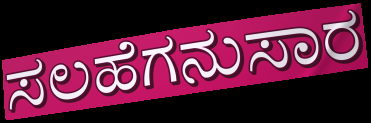
ಸಲಹೆಗನುಸಾರ